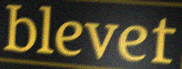
blevet